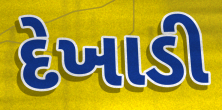
દેખાડી